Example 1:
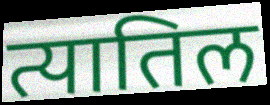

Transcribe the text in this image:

त्यातिल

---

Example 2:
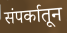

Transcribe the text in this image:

संपर्कातून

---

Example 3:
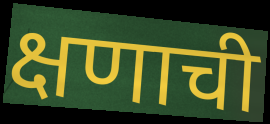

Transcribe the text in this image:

क्षणाची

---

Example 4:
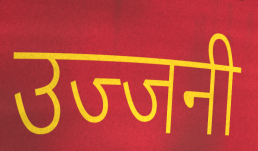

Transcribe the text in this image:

उज्जनी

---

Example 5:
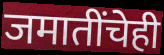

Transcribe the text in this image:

जमातींचेही